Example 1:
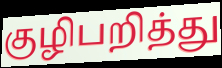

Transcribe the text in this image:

குழிபறித்து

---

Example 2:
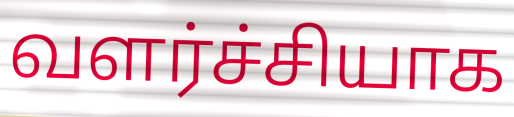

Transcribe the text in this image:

வளர்ச்சியாக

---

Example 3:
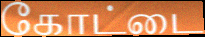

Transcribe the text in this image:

கோட்டை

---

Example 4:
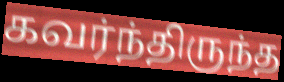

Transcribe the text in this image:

கவர்ந்திருந்த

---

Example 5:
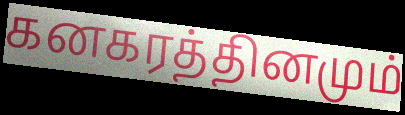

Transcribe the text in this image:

கனகரத்தினமும்